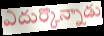
ఎదుర్కొన్నాడు